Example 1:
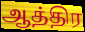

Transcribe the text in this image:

ஆத்திர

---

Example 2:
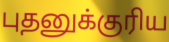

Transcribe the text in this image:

புதனுக்குரிய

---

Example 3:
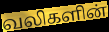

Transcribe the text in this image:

வலிகளின்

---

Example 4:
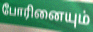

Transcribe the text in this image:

போரினையும்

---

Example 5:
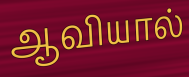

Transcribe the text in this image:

ஆவியால்